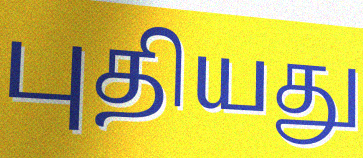
புதியது